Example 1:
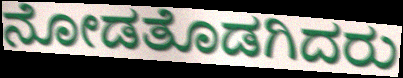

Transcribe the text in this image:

ನೋಡತೊಡಗಿದರು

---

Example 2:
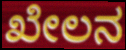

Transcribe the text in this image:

ಖೇಲನ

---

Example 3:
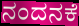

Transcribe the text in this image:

ನಂದನಕೆ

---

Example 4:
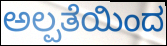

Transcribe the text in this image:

ಅಲ್ಪತೆಯಿಂದ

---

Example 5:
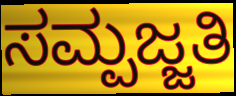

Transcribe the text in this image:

ಸಮ್ಪಜ್ಜತಿ